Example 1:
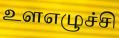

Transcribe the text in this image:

உளஎழுச்சி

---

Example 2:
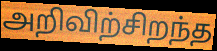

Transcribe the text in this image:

அறிவிற்சிறந்த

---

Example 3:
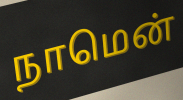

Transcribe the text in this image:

நாமென்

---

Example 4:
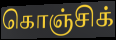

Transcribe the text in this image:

கொஞ்சிக்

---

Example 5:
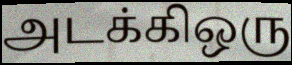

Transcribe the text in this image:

அடக்கிஒரு